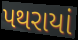
પથરાયાં